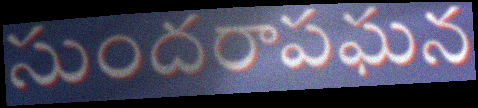
సుందరాపఘన